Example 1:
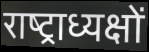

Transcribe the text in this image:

राष्ट्राध्यक्षों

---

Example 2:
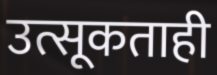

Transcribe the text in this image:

उत्सूकताही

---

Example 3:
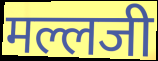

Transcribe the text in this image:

मल्लजी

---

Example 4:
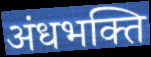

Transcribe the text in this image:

अंधभक्ति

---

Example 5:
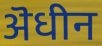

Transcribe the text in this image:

ऄधीन